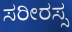
ಸರೀರಸ್ಸ